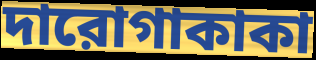
দারোগাকাকা